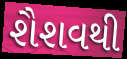
શૈશવથી